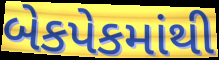
બેકપેકમાંથી